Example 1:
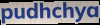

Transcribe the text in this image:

pudhchya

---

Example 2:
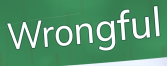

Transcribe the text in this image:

Wrongful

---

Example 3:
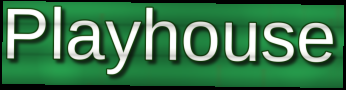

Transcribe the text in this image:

Playhouse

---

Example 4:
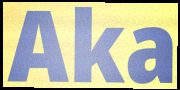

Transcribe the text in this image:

Aka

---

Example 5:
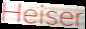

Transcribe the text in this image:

Heiser